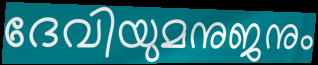
ദേവിയുമനുജനും